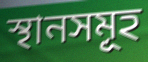
স্থানসমূহ